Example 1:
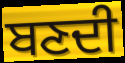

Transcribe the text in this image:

ਬਣਦੀ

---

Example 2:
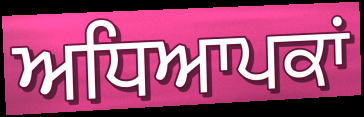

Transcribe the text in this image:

ਅਧਿਆਪਕਾਂ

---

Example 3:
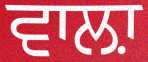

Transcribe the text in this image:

ਵਾਲ਼ਾ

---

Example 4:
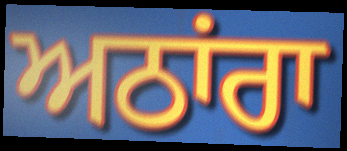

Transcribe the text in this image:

ਅਠਾਂਰਾ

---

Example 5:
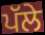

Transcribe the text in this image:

ਪੱਲੇ